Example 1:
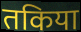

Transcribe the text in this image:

तकिया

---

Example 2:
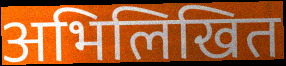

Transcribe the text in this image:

अभिलिखित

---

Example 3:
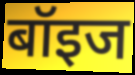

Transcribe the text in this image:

बॉइज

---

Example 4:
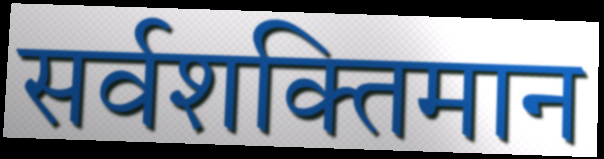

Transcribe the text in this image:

सर्वशक्‍तिमान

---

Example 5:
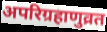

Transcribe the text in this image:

अपरिग्रहाणुव्रत